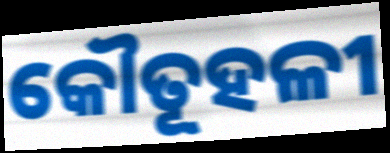
କୌତୂହଳୀ